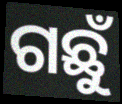
ଗଛୁଁ